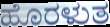
ಹೊರಳುತ